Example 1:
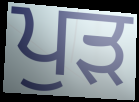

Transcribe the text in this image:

ਪੁੜ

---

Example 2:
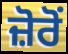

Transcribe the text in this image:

ਜ਼ੋਰੋਂ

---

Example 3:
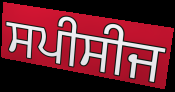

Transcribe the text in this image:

ਸਪੀਸੀਜ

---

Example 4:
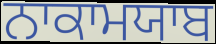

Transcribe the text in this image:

ਨਾਕਾਮਯਾਬ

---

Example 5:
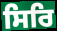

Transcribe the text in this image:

ਸਿਰਿ